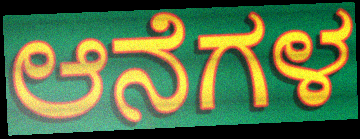
ಆನೆಗಳ